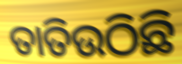
ତାତିଉଠିଛି